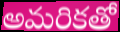
అమరికతో